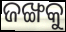
ଜଙ୍ଖକୁ